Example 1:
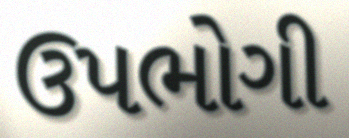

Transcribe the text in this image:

ઉપભોગી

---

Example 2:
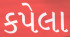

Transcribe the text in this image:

કપેલા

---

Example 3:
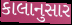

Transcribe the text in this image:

કાલાનુસાર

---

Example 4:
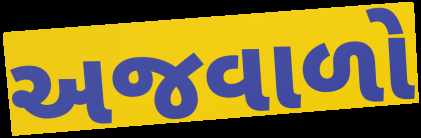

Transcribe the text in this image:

અજવાળો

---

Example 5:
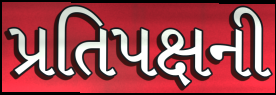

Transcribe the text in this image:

પ્રતિપક્ષની